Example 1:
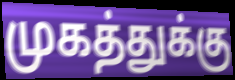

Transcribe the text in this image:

முகத்துக்கு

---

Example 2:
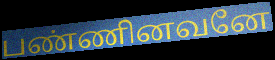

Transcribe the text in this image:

பண்ணினவனே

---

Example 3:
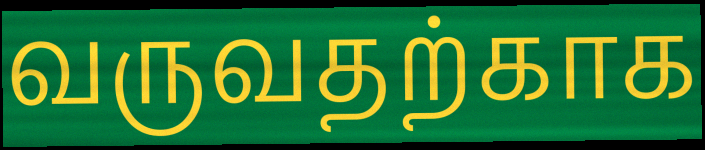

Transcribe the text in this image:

வருவதற்காக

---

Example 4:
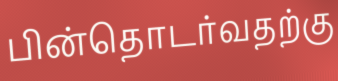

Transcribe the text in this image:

பின்தொடர்வதற்கு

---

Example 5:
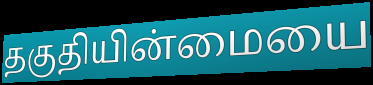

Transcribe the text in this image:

தகுதியின்மையை